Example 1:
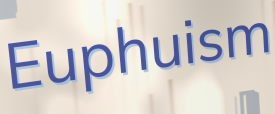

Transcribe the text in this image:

Euphuism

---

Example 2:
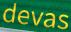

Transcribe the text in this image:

devas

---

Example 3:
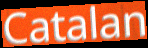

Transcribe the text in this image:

Catalan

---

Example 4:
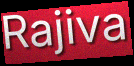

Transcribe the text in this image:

Rajiva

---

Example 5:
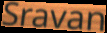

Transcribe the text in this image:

Sravan